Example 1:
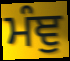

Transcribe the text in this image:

ਮੰਞੁ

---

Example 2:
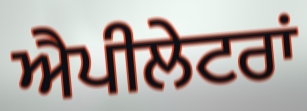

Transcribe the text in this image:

ਐਪੀਲੇਟਰਾਂ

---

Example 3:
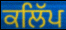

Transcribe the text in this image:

ਕਲਿੱਪ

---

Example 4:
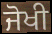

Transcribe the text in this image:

ਜੋਖੀ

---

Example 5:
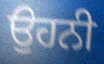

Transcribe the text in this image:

ਉਹਨੀ